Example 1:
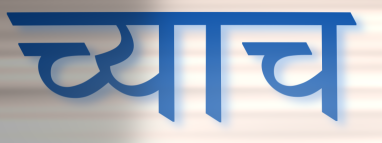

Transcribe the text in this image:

च्याच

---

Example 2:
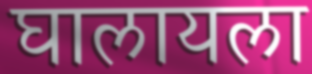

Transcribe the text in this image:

घालायला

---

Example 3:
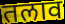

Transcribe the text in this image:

तलाव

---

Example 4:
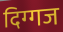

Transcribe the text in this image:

दिग्गज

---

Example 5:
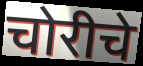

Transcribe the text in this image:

चोरीचे